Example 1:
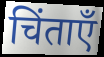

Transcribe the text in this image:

चिंताएँ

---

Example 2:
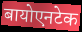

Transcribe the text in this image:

बायोएनटेक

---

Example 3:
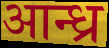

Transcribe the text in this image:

आन्ध्र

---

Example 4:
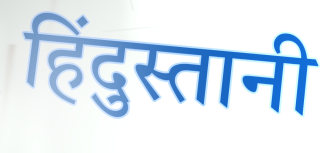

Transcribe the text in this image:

हिंदुस्तानी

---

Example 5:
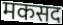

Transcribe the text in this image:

मकसद